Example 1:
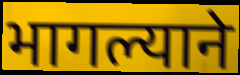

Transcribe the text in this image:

भागल्याने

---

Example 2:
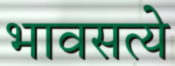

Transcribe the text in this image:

भावसत्ये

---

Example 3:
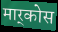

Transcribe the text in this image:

मार्कोस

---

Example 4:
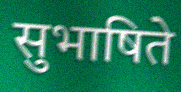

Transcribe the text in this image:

सुभाषिते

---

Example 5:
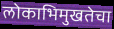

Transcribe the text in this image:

लोकाभिमुखतेचा